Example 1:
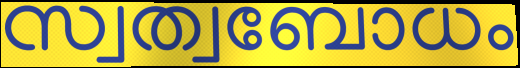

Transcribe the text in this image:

സ്വത്വബോധം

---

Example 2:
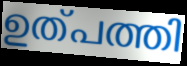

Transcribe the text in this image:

ഉത്പത്തി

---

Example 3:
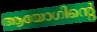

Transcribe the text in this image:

ആയോഗിന്റെ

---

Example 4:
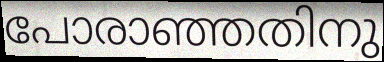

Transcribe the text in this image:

പോരാഞ്ഞതിനു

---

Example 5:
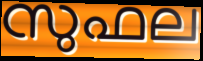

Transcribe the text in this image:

സുഫല